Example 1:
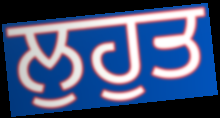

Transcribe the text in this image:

ਲੁਹੁਤ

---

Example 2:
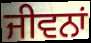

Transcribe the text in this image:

ਜੀਵਨਾਂ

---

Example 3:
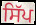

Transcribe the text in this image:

ਸਿੱਪ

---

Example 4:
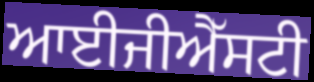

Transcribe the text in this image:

ਆਈਜੀਐੱਸਟੀ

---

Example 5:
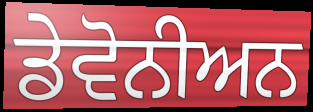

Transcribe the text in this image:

ਡੇਵੋਨੀਅਨ